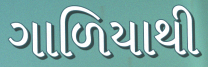
ગાળિયાથી